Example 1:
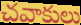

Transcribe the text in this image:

చవాకులు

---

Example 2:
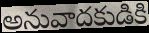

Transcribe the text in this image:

అనువాదకుడికి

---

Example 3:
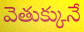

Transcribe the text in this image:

వెతుక్కునే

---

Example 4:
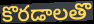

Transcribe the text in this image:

కొరడాలతొ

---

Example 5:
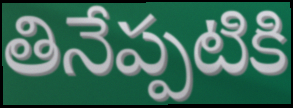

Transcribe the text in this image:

తినేప్పటికి